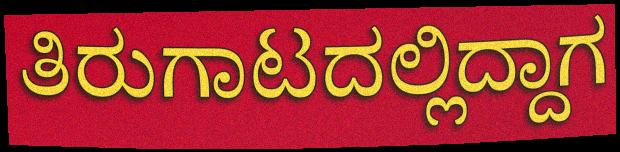
ತಿರುಗಾಟದಲ್ಲಿದ್ದಾಗ